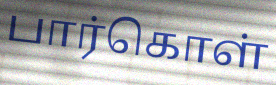
பார்கொள்